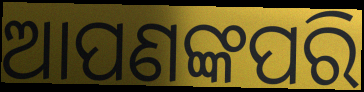
ଆପଣଙ୍କପରି